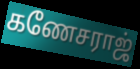
கணேசராஜ்